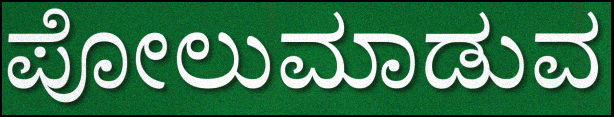
ಪೋಲುಮಾಡುವ